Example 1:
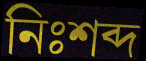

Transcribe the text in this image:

নিঃশব্দ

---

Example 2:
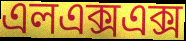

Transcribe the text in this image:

এলএক্সএক্স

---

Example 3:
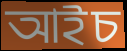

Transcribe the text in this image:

আইচ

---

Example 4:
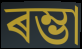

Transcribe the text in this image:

ৰম্ভা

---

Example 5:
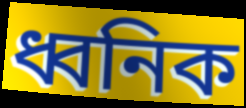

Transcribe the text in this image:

ধ্বনিক